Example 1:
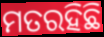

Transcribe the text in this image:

ମତରହିଛି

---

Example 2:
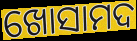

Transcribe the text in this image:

ଖୋସାମଦ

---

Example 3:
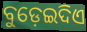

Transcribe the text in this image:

ବୁଡ଼େଇଦିଏ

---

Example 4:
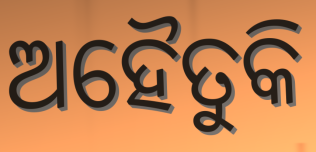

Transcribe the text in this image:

ଅହୈତୁକି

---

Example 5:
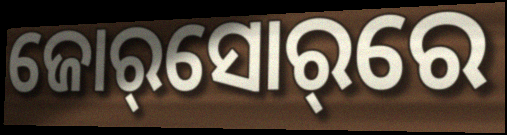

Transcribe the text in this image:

ଜୋର୍‌ସୋର୍‌ରେ